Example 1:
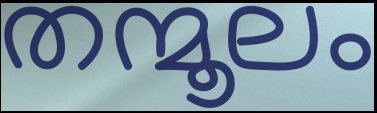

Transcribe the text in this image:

തന്മൂലം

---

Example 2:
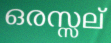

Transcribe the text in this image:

ഒരസ്സല്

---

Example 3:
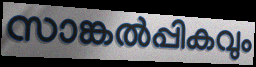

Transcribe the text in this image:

സാങ്കൽപ്പികവും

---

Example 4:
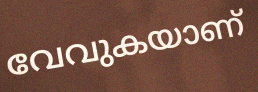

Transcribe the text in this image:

വേവുകയാണ്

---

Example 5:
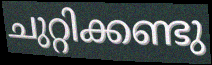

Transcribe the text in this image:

ചുറ്റിക്കണ്ടു